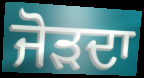
ਜੋੜਦਾ